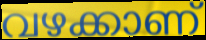
വഴക്കാണ്